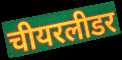
चीयरलीडर